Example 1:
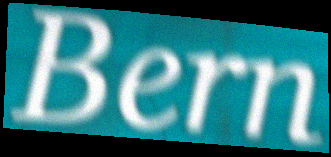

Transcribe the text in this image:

Bern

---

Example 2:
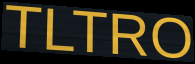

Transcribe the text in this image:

TLTRO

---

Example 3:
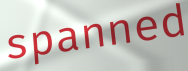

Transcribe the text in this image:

spanned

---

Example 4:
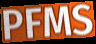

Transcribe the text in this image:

PFMS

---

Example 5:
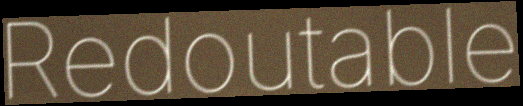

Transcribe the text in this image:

Redoutable